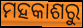
ମହକାଶରୁ